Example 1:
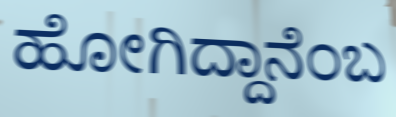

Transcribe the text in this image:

ಹೋಗಿದ್ದಾನೆಂಬ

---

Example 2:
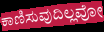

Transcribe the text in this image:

ಕಾಣಿಸುವುದಿಲ್ಲವೋ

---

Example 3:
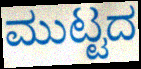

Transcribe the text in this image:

ಮುಟ್ಟದ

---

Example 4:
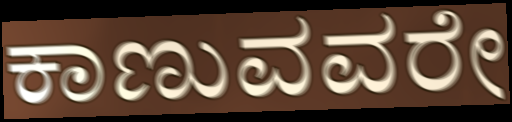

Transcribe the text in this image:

ಕಾಣುವವರೇ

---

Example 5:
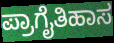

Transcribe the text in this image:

ಪ್ರಾಗೈತಿಹಾಸ